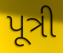
પૂત્રી